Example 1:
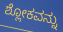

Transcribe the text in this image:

ಶ್ಲೋಕವನ್ನು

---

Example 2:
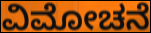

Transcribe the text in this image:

ವಿಮೋಚನೆ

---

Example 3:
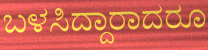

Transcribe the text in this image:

ಬಳಸಿದ್ದಾರಾದರೂ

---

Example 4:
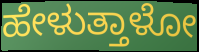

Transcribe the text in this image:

ಹೇಳುತ್ತಾಳೋ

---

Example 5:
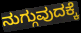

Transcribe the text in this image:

ನುಗ್ಗುವುದಕ್ಕೆ